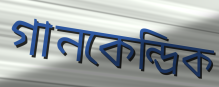
গানকেন্দ্রিক